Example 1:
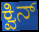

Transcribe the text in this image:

ಕ್ವಿನ್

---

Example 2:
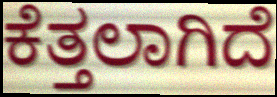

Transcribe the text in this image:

ಕೆತ್ತಲಾಗಿದೆ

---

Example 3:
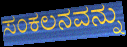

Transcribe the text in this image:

ಸಂಕಲನವನ್ನು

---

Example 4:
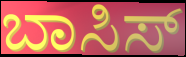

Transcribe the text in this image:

ಬಾಸಿಸ್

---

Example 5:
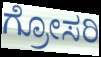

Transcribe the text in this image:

ಗ್ರೋಸರಿ